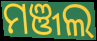
ମଞ୍ଜଲ